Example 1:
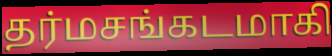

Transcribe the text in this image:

தர்மசங்கடமாகி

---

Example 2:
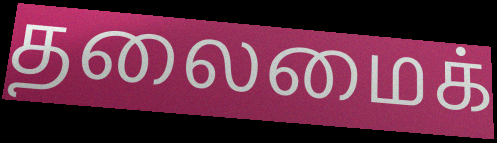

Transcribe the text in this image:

தலைமைக்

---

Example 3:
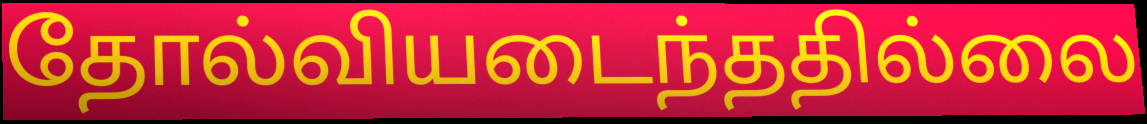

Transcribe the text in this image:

தோல்வியடைந்ததில்லை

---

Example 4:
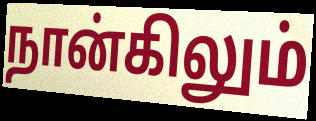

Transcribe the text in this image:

நான்கிலும்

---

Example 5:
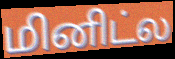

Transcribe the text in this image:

மினிட்ல